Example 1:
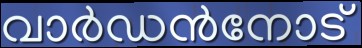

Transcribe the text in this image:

വാർഡൻനോട്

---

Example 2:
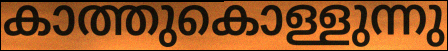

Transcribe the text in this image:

കാത്തുകൊള്ളുന്നു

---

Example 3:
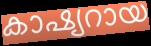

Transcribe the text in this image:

കാഷ്യറായ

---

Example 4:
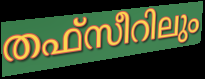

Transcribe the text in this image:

തഫ്സീറിലും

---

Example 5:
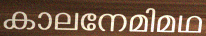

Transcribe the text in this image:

കാലനേമിമഥ